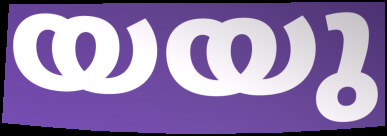
യയു